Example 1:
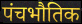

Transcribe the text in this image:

पंचभौतिक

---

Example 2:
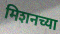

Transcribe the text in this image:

मिशनच्या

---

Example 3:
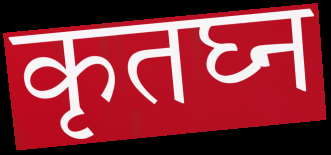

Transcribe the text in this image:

कृतघ्न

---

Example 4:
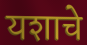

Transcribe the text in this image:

यशाचे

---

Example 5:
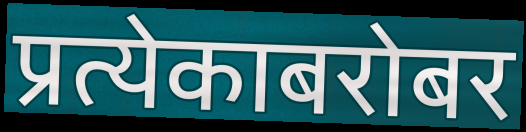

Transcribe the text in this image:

प्रत्येकाबरोबर